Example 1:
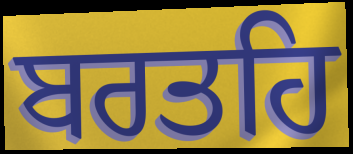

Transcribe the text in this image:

ਬਰਤਹਿ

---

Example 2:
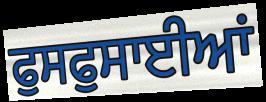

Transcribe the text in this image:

ਫੁਸਫੁਸਾਈਆਂ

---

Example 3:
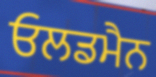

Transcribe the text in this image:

ਓਲਡਮੈਨ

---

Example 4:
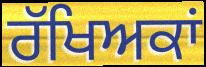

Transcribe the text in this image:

ਰੱਖਿਅਕਾਂ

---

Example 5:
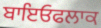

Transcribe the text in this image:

ਬਾਇਓਫਲਾਕ